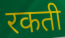
रकती